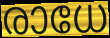
രാധേ